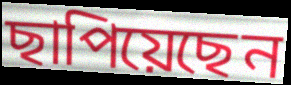
ছাপিয়েছেন